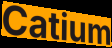
Catium